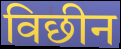
विछीन